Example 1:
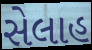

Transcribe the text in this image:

સેલાહ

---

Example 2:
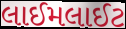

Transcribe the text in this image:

લાઈમલાઈટ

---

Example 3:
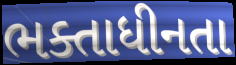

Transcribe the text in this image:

ભક્તાધીનતા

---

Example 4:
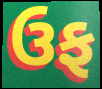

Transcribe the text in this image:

ઉફ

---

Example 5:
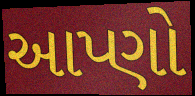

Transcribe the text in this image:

આપ્ણો